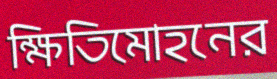
ক্ষিতিমোহনের